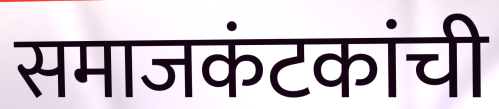
समाजकंटकांची